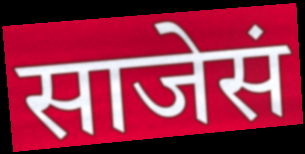
साजेसं